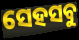
ସେହସବୁ